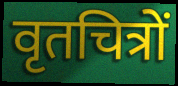
वृतचित्रों